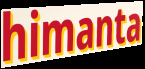
himanta